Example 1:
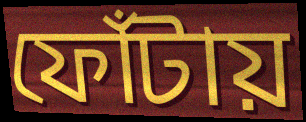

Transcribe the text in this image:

ফোঁটায়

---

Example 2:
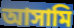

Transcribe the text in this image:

আসামি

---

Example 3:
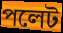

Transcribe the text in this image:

পলেট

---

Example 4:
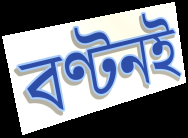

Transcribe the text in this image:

বণ্টনই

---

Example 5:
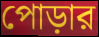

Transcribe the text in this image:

পোড়ার